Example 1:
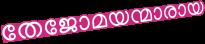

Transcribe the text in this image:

തേജോമയന്മാരായ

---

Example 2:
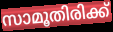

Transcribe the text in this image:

സാമൂതിരിക്ക്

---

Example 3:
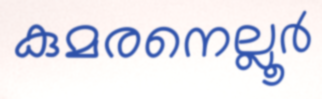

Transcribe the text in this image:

കുമരനെല്ലൂർ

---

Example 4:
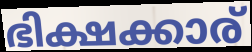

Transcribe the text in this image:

ഭിക്ഷക്കാര്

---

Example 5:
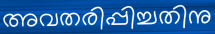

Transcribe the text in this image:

അവതരിപ്പിച്ചതിനു